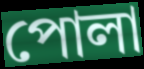
পোলা